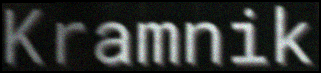
Kramnik